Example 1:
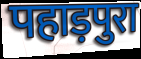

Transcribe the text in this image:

पहाड़पुरा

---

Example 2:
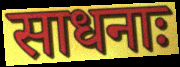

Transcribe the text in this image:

साधनाः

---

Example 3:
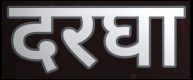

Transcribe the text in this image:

दरघा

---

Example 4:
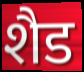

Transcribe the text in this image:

शैड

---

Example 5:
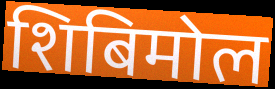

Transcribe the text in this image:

शिबिमोल